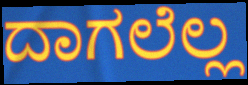
ದಾಗಲೆಲ್ಲ